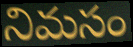
నిమసం